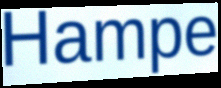
Hampe